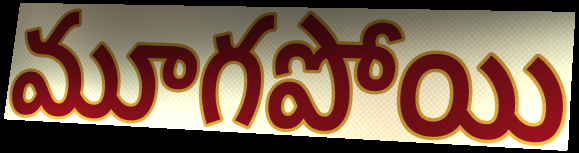
మూగపోయి